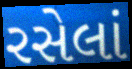
રસેલાં